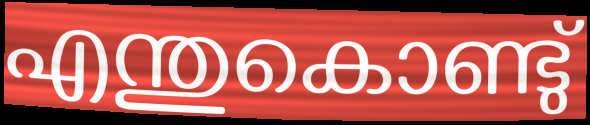
എന്തുകൊണ്ടു്